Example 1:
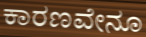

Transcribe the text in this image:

ಕಾರಣವೇನೂ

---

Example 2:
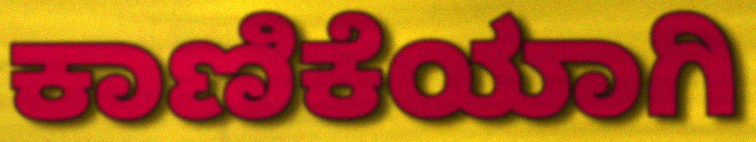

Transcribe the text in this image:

ಕಾಣಿಕೆಯಾಗಿ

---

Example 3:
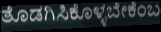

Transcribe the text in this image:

ತೊಡಗಿಸಿಕೊಳ್ಳಬೇಕೆಂಬ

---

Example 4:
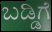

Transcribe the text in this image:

ಬಡ್ಡಿಗೆ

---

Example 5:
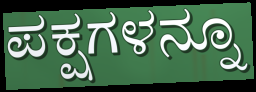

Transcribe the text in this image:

ಪಕ್ಷಗಳನ್ನೂ